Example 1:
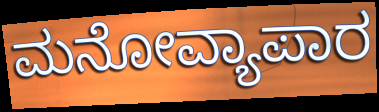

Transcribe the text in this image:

ಮನೋವ್ಯಾಪಾರ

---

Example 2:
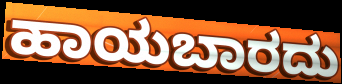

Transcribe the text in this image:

ಹಾಯಬಾರದು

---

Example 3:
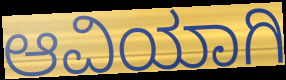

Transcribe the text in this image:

ಆವಿಯಾಗಿ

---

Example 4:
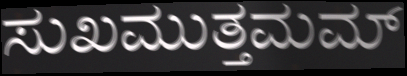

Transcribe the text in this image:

ಸುಖಮುತ್ತಮಮ್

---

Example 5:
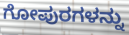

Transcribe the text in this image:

ಗೋಪುರಗಳನ್ನು